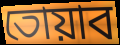
তোয়াব